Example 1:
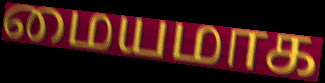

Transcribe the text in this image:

மையமாக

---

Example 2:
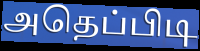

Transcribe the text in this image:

அதெப்பிடி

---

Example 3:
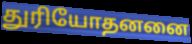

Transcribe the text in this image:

துரியோதனனை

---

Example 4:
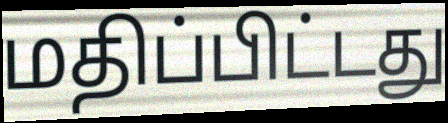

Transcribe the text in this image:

மதிப்பிட்டது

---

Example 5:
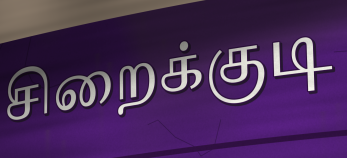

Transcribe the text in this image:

சிறைக்குடி